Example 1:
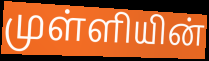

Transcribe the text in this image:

முள்ளியின்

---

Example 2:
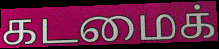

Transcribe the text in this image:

கடமைக்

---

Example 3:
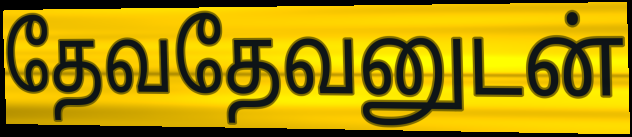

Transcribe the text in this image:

தேவதேவனுடன்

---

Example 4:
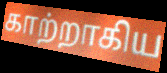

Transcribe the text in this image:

காற்றாகிய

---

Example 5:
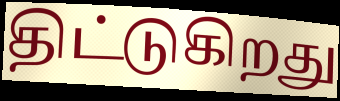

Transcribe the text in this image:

திட்டுகிறது